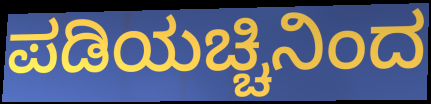
ಪಡಿಯಚ್ಚಿನಿಂದ